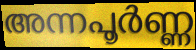
അന്നപൂർണ്ണ